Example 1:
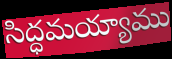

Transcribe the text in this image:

సిద్ధమయ్యాము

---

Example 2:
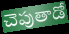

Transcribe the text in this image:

చెపుతాడో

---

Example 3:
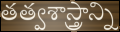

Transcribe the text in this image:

తత్వశాస్త్రాన్ని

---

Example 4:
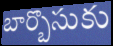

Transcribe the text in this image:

బార్బొసుకు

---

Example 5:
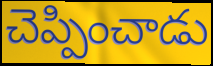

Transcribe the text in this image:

చెప్పించాడు